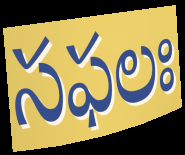
సఫలః